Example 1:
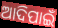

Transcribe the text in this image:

ଆଦିପାଇଁ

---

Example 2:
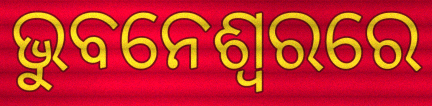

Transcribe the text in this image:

ଭୁବନେଶ୍ୱରରେ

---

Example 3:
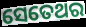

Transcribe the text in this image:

ସେତେଥର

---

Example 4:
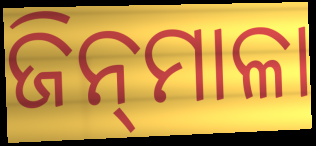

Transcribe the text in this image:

ଜିନ୍‌ମାଳା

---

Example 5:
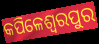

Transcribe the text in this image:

କପିଳେଶ୍ୱରପୁର